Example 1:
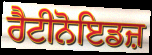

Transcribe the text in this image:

ਰੈਟੀਨੋਇਡਜ਼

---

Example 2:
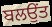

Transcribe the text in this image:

ਬਲਉਂਤ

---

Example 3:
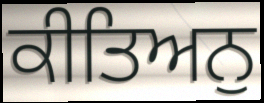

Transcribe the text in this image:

ਕੀਤਿਅਨੁ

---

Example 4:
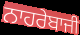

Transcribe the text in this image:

ਨਾਹਰੇਬਾਜੀ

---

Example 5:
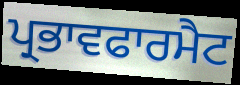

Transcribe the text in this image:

ਪ੍ਰਭਾਵਫਾਰਮੈਟ